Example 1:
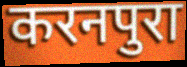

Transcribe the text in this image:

करनपुरा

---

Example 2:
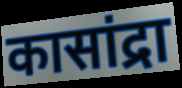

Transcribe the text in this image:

कासांद्रा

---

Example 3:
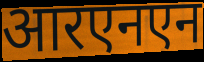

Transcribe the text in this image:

आरएनएन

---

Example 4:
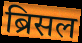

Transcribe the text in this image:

ब्रिसल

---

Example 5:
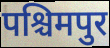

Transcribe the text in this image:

पश्चिमपुर